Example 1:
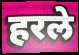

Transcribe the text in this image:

हरले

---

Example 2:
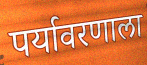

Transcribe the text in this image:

पर्यावरणाला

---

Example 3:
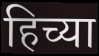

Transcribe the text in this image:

हिच्या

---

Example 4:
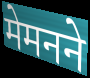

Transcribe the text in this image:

मेमनने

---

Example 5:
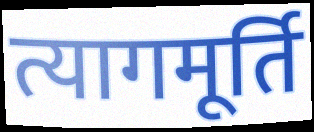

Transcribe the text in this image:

त्यागमूर्ति